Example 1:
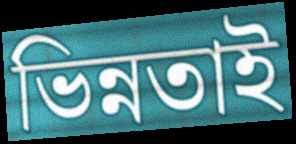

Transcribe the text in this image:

ভিন্নতাই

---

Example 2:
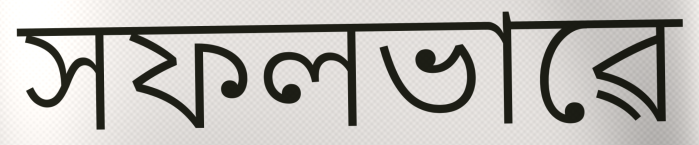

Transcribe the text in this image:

সফলভাৱে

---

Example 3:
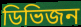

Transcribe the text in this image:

ডিভিজন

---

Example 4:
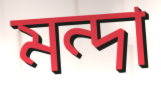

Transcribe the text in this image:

মন্দা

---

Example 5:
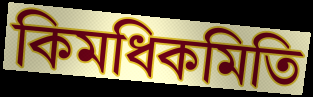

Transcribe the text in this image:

কিমধিকমিতি